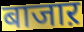
बाजाऱ